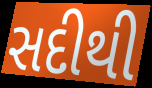
સદીથી